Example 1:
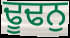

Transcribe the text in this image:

ਢੂਢਨੁ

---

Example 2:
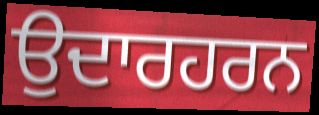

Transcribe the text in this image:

ਉਦਾਰਹਰਨ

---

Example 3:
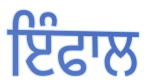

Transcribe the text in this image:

ਇੰਫਾਲ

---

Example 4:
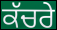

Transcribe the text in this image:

ਕੱਚਰੇ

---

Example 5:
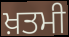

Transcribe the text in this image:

ਖ਼ਤਮੀ